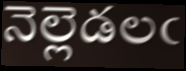
నెల్లెడలఁ